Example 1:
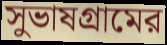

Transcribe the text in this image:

সুভাষগ্রামের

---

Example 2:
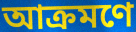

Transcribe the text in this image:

আক্রমণে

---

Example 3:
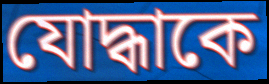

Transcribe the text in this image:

যোদ্ধাকে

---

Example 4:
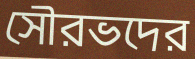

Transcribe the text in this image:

সৌরভদের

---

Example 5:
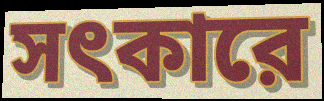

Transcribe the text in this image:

সৎকারে